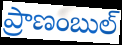
ప్రాణంబుల్